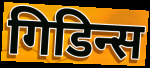
गिडिन्स